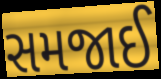
સમજાઈ